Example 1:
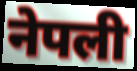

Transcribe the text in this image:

नेपली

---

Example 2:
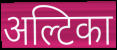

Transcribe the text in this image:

अल्टिका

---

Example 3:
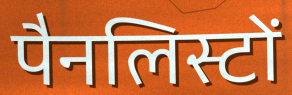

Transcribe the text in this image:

पैनलिस्टों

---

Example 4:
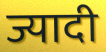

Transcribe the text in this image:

ज्यादी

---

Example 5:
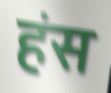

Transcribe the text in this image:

हंस